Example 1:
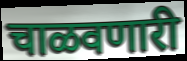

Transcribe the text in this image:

चाळवणारी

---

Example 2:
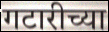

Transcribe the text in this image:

गटारीच्या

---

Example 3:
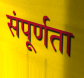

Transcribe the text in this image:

संपूर्णता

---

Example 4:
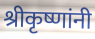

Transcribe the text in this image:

श्रीकृष्णांनी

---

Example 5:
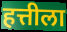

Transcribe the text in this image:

हत्तीला